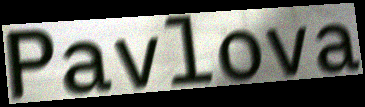
Pavlova